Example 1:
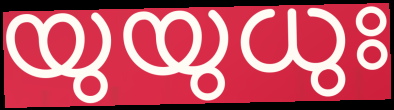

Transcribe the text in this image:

യുയുധുഃ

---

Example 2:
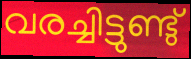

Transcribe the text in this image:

വരച്ചിട്ടുണ്ടു്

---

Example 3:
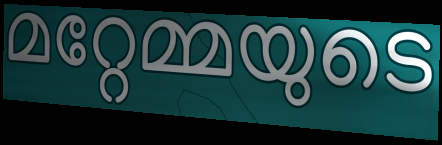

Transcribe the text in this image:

മറ്റേമ്മയുടെ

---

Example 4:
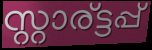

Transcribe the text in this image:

സ്റ്റാര്ട്ടപ്പ്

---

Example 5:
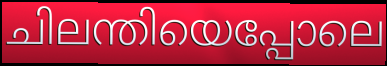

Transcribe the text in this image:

ചിലന്തിയെപ്പോലെ